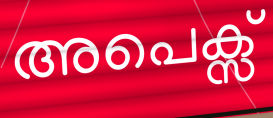
അപെക്സ്